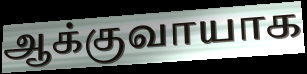
ஆக்குவாயாக